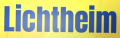
Lichtheim